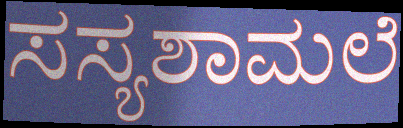
ಸಸ್ಯಶಾಮಲೆ